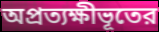
অপ্রত্যক্ষীভূতের